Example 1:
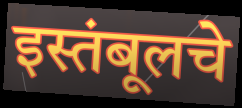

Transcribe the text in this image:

इस्तंबूलचे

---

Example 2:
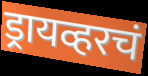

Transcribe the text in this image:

ड्रायव्हरचं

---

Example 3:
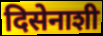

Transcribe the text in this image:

दिसेनाशी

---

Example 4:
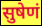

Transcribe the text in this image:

सुषेणं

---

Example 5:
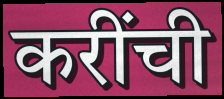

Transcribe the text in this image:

करींची